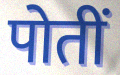
पोतीं